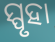
ସ୍ପୃହା